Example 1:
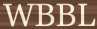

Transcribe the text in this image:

WBBL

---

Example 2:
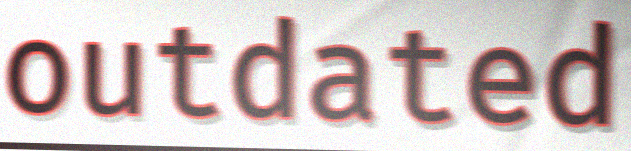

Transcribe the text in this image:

outdated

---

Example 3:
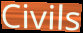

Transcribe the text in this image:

Civils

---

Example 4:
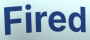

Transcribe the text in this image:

Fired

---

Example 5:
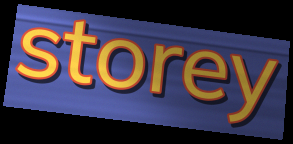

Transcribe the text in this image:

storey